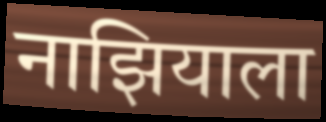
नाझियाला